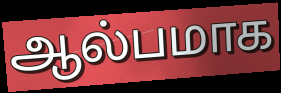
ஆல்பமாக